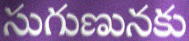
సుగుణునకు